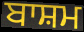
ਬਾਸ਼ਮ